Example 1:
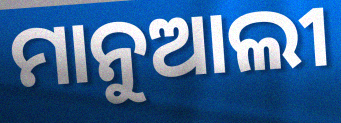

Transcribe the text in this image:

ମାନୁଆଲୀ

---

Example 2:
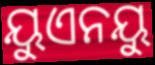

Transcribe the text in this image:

ୟୁଏନୟୁ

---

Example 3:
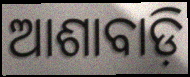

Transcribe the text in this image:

ଆଶାବାଡ଼ି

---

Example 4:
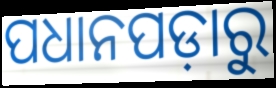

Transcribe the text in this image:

ପଧାନପଡ଼ାରୁ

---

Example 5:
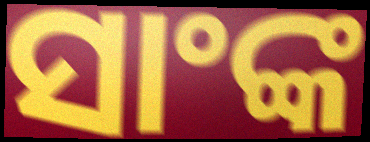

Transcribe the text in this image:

ସାଂଙ୍କ